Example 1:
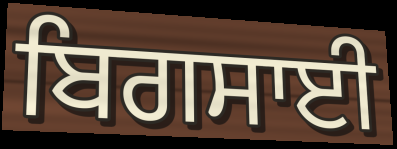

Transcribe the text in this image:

ਬਿਗਸਾਈ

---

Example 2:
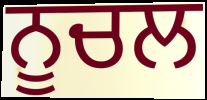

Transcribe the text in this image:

ਨੂਚਲ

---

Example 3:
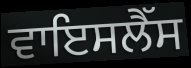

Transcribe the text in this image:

ਵਾਇਸਲੈੱਸ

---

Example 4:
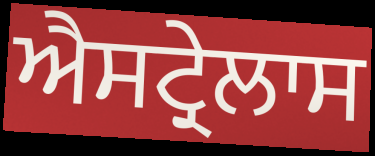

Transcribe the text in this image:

ਐਸਟ੍ਰੇਲਾਸ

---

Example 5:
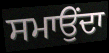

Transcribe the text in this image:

ਸਮਾਉਂਦਾ